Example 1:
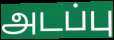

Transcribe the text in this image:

அடப்பு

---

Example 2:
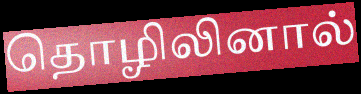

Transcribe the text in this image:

தொழிலினால்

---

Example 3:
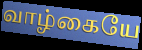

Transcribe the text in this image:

வாழ்கையே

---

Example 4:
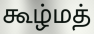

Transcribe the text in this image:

கூழ்மத்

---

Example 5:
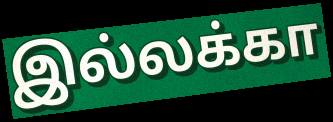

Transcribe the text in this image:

இல்லக்கா